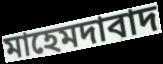
মাহেমদাবাদ